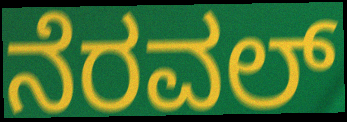
ನೆರವಲ್